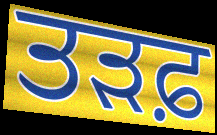
ਤੜਫ਼